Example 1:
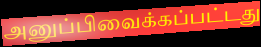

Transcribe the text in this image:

அனுப்பிவைக்கப்பட்டது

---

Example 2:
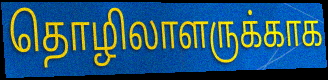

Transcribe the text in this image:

தொழிலாளருக்காக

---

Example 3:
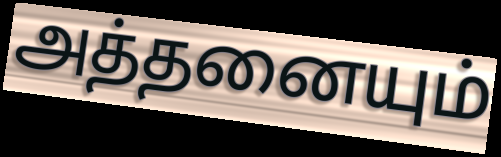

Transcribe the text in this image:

அத்தனையும்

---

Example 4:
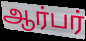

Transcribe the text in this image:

ஆர்பர்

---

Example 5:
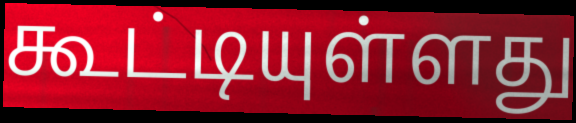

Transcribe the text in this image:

கூட்டியுள்ளது